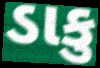
ડાકુ